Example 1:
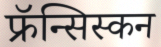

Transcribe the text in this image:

फ्रॅन्सिस्कन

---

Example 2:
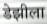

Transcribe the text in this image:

डेझीला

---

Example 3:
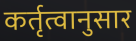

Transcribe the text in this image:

कर्तृत्वानुसार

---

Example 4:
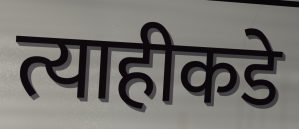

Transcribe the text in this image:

त्याहीकडे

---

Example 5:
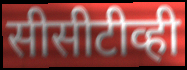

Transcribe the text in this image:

सीसीटीव्ही